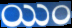
యిం